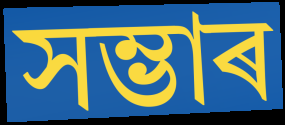
সম্ভাৰ